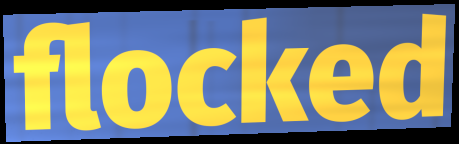
flocked